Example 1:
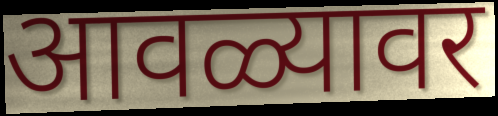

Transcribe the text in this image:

आवळ्यावर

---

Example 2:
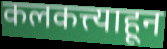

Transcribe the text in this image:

कलकत्त्याहून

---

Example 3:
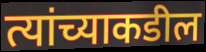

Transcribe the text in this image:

त्यांच्याकडील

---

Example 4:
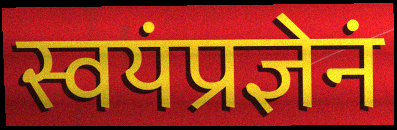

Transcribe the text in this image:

स्वयंप्रज्ञेनं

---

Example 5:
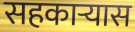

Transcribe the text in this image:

सहकार्‍यास